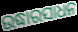
ଉଦ୍ଧାରସାଧନ